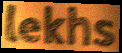
lekhs